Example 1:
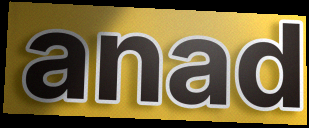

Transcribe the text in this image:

anad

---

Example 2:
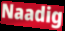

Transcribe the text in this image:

Naadig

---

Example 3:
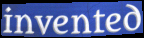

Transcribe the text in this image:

invented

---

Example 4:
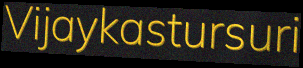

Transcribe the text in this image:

Vijaykastursuri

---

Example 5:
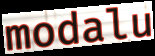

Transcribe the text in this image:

modalu